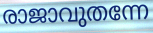
രാജാവുതന്നേ